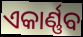
ଏକାର୍ଣ୍ଣବ